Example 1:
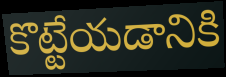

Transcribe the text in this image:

కొట్టేయడానికి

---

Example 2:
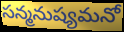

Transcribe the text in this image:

సన్మనుష్యమనో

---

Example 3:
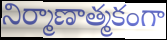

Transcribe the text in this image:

నిర్మాణాత్మకంగా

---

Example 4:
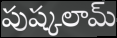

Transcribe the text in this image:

పుష్కలామ్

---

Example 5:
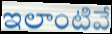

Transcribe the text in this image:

ఇలాంటివే